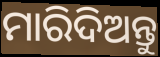
ମାରିଦିଅନ୍ତୁ